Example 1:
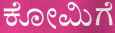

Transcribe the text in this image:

ಕೋಮಿಗೆ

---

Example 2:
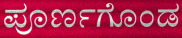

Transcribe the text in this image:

ಪೂರ್ಣಗೊಂಡ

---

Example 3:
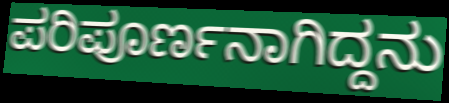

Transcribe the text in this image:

ಪರಿಪೂರ್ಣನಾಗಿದ್ದನು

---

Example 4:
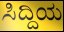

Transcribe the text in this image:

ಸಿದ್ದಿಯ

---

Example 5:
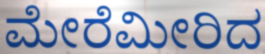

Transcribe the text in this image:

ಮೇರೆಮೀರಿದ